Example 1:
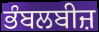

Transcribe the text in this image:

ਭੰਬਲਬੀਜ਼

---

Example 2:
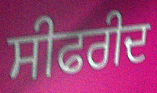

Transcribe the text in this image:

ਸੀਫਰੀਦ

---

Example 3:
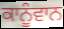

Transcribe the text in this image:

ਕਾਨੂੰਵਾਨ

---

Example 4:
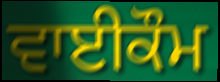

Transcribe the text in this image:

ਵਾਈਕੌਮ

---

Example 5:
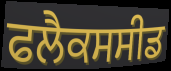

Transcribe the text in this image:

ਫਲੈਕਸਸੀਡ